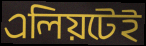
এলিয়টেই